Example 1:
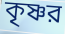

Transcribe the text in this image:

কৃষ্ণর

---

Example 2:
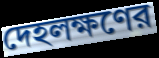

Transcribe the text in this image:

দেহলক্ষণের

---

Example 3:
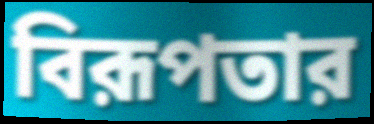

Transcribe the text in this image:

বিরূপতার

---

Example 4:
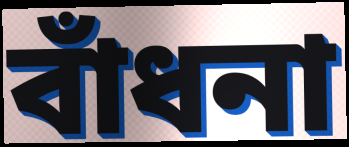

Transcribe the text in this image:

বাঁধনা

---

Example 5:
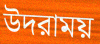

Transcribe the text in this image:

উদরাময়